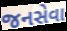
જનસેવા